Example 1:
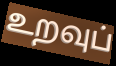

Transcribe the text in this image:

உறவுப்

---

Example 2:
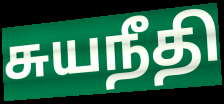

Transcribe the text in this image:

சுயநீதி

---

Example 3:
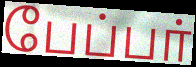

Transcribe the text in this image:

பேப்பர்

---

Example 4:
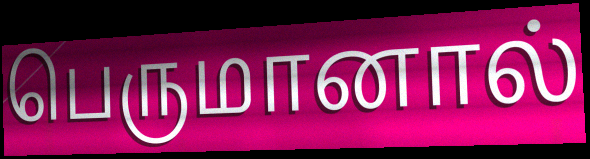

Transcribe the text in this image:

பெருமானால்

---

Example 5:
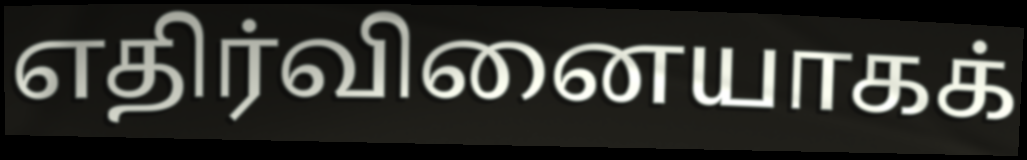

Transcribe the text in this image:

எதிர்வினையாகக்